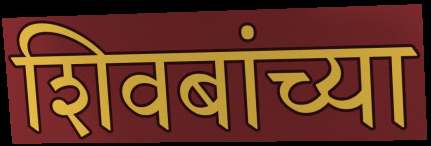
शिवबांच्या